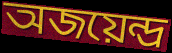
অজয়েন্দ্র